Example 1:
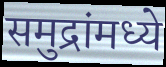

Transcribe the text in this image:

समुद्रांमध्ये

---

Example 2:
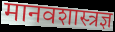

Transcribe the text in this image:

मानवशास्त्रज्ञ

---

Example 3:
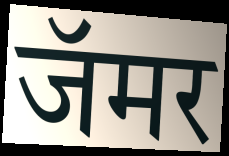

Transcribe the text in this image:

जॅमर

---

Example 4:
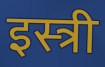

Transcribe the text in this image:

इस्त्री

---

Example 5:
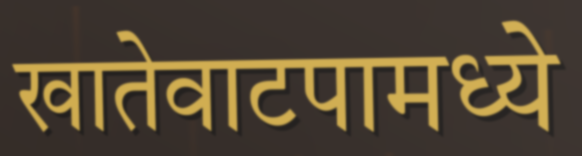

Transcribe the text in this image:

खातेवाटपामध्ये